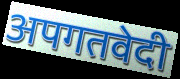
अपगतवेदी